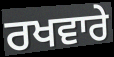
ਰਖਵਾਰੇ